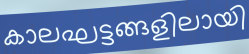
കാലഘട്ടങ്ങളിലായി